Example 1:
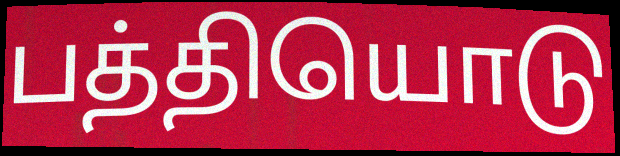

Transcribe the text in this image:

பத்தியொடு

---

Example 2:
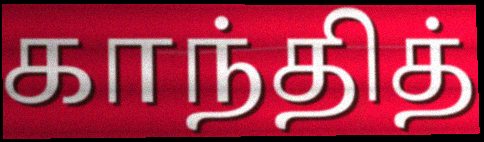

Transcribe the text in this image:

காந்தித்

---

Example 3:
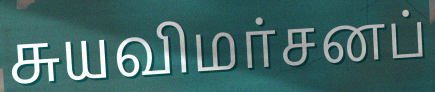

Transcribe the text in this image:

சுயவிமர்சனப்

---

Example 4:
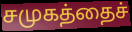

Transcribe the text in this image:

சமுகத்தைச்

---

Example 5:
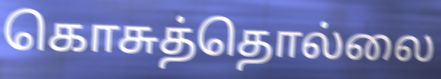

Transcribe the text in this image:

கொசுத்தொல்லை